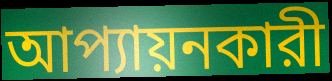
আপ্যায়নকারী